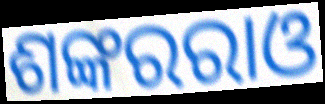
ଶଙ୍କରରାଓ